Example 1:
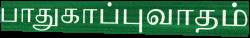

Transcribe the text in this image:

பாதுகாப்புவாதம்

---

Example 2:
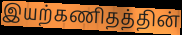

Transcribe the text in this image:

இயற்கணிதத்தின்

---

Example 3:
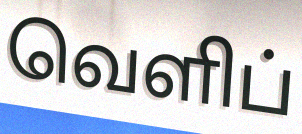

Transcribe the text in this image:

வெளிப்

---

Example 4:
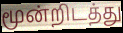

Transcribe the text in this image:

மூன்றிடத்து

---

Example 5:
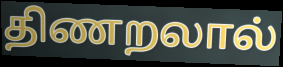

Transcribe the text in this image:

திணறலால்